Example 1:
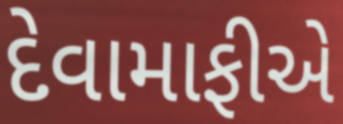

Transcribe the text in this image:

દેવામાફીએ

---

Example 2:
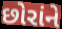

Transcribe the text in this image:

છોરાંને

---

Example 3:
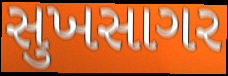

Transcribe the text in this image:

સુખસાગર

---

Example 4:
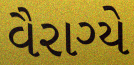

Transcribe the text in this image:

વૈરાગ્યે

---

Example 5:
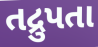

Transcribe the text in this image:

તદ્રુપતા